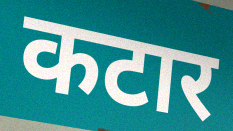
कटार